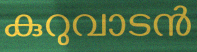
കുറുവാടൻ